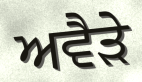
ਅਵੈੜੇ